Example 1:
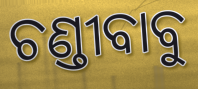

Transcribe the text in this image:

ଚଣ୍ଡୀବାବୁ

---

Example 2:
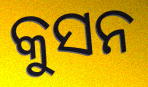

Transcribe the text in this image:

କୁସନ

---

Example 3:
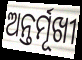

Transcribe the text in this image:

ଅନ୍ତର୍ମୂଖୀ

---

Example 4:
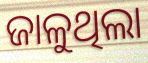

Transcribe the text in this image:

ଜାଳୁଥିଲା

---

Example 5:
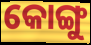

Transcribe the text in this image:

କୋଙ୍ଗୁ